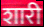
शारी